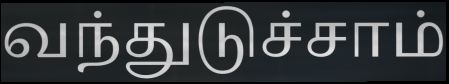
வந்துடுச்சாம்